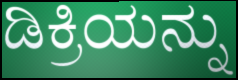
ಡಿಕ್ರಿಯನ್ನು